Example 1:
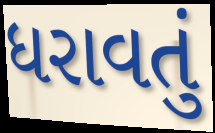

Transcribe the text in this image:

ધરાવતું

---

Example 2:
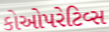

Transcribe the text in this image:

કોઓપરેટિવ્સ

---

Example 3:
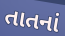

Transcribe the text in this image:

તાતનાં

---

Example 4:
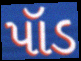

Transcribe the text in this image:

પૉડ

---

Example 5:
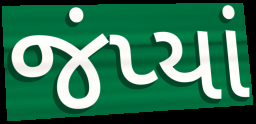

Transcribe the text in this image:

જંપ્યાં